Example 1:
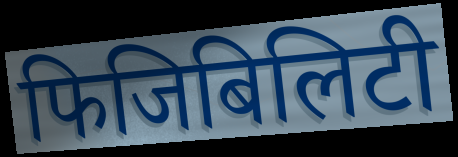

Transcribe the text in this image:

फिजिबिलिटी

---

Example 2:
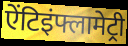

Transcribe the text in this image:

ऐंटिइंफ्लामेट्री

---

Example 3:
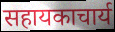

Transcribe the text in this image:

सहायकाचार्य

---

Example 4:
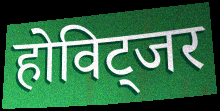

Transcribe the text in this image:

होविट्जर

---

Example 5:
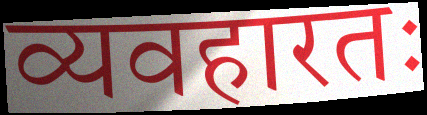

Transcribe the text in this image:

व्यवहारतः